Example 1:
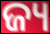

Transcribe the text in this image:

ଜ୍ୟ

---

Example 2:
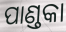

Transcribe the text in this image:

ପାଣ୍ଡକା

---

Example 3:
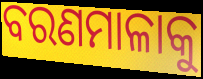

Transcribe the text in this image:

ବରଣମାଳାକୁ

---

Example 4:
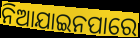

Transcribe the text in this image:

ନିଆଯାଇନପାରେ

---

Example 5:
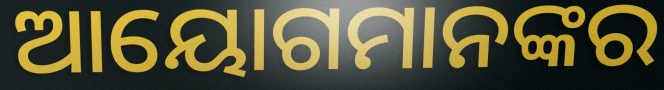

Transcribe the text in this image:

ଆୟୋଗମାନଙ୍କର